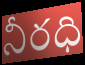
నీరధి